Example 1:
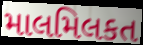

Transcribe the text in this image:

માલમિલકત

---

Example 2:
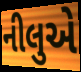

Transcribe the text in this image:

નીલુએ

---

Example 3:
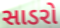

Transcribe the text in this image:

સાડરો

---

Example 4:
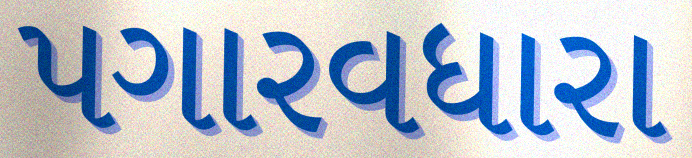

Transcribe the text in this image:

પગારવધારા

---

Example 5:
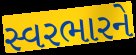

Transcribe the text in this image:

સ્વરભારને